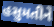
હસુમતીને